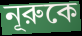
নূরুকে